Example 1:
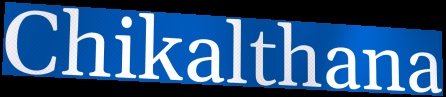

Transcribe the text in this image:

Chikalthana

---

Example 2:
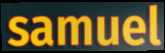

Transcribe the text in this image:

samuel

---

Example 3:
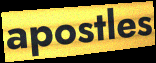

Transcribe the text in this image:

apostles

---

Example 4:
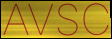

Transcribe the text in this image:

AVSC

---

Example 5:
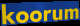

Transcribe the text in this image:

koorum